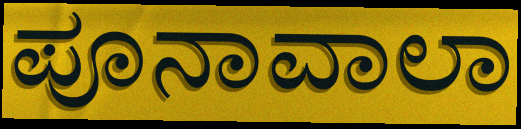
ಪೂನಾವಾಲಾ